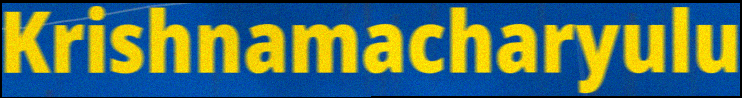
Krishnamacharyulu